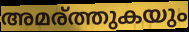
അമര്ത്തുകയും